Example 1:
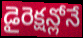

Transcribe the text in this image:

డైరెక్షన్లోనే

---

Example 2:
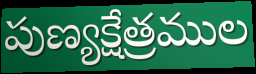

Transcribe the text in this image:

పుణ్యక్షేత్రముల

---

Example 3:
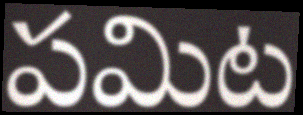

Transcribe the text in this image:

పమిట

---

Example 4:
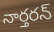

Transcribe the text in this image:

నార్తరన్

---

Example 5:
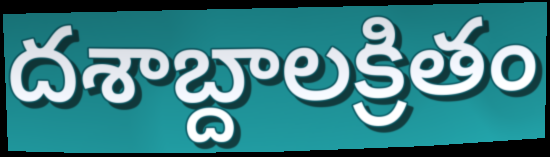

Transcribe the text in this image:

దశాబ్దాలక్రితం